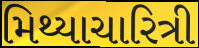
મિથ્યાચારિત્રી